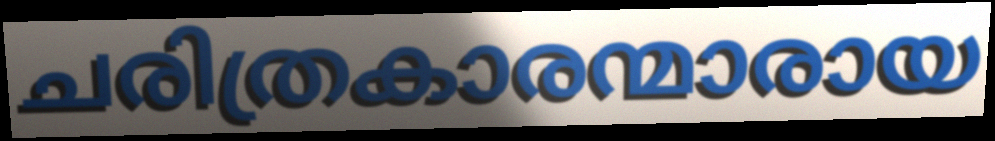
ചരിത്രകാരന്മാരായ